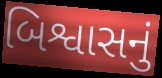
બિશ્વાસનું